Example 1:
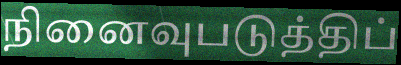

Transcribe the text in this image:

நினைவுபடுத்திப்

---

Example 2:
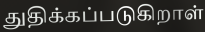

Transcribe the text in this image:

துதிக்கப்படுகிறாள்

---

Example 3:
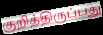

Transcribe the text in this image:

குறித்திருப்பது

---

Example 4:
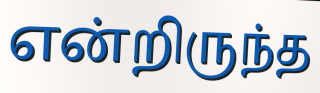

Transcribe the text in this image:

என்றிருந்த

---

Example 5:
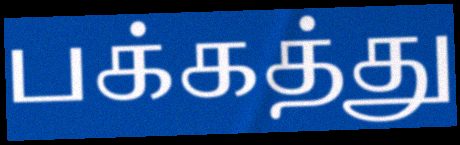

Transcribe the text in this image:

பக்கத்து